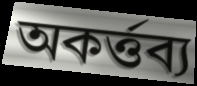
অকর্ত্তব্য